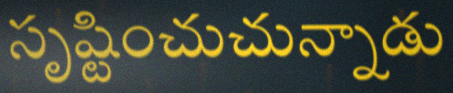
సృష్టించుచున్నాడు